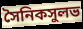
সৈনিকসুলভ